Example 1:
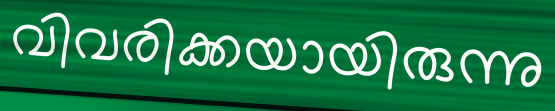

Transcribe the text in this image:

വിവരിക്കയായിരുന്നു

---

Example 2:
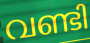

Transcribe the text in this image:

വണ്ടി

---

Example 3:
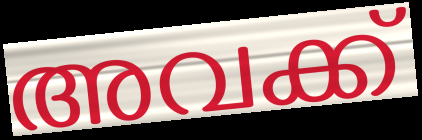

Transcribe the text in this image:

അവക്ക്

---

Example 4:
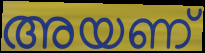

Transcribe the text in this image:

അയണ്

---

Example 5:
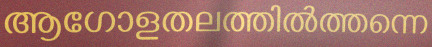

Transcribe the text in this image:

ആഗോളതലത്തിൽത്തന്നെ